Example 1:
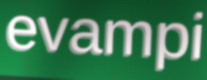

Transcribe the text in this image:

evampi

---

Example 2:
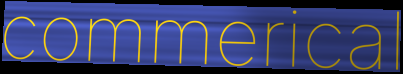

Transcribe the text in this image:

commerical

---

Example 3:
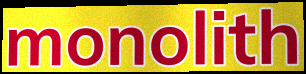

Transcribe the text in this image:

monolith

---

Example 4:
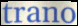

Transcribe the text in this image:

trano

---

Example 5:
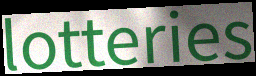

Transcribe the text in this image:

lotteries